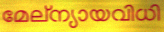
മേല്ന്യായവിധി